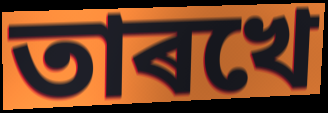
তাৰখে